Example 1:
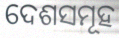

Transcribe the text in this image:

ଦେଶସମୂହ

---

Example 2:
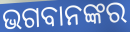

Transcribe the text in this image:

ଭଗବାନଙ୍କର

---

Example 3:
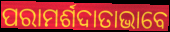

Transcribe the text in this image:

ପରାମର୍ଶଦାତାଭାବେ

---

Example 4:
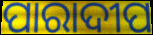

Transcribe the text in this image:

ପାରାଦୀପ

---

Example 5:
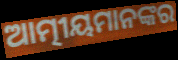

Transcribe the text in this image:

ଆତ୍ମୀୟମାନଙ୍କର